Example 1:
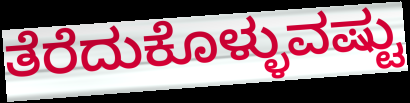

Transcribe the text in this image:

ತೆರೆದುಕೊಳ್ಳುವಷ್ಟು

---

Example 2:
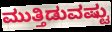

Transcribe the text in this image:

ಮುತ್ತಿಡುವಷ್ಟು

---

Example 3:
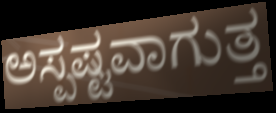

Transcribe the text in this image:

ಅಸ್ಪಷ್ಟವಾಗುತ್ತ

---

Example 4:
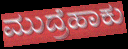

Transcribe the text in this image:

ಮುದ್ರೆಹಾಕು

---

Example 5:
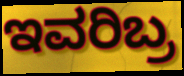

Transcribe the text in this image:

ಇವರಿಬ್ರ